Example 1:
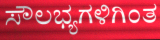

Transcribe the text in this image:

ಸೌಲಭ್ಯಗಳಿಗಿಂತ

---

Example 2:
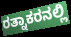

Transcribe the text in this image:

ರತ್ನಾಕರನಲ್ಲಿ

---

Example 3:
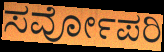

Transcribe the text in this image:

ಸರ್ವೋಪರಿ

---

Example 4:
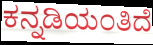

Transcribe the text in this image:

ಕನ್ನಡಿಯಂತಿದೆ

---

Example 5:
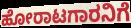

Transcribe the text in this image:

ಹೋರಾಟಗಾರನಿಗೆ